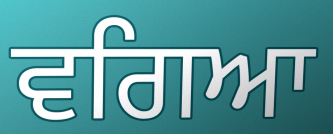
ਵਗਿਆ